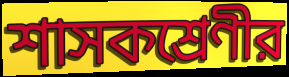
শাসকশ্রেণীর